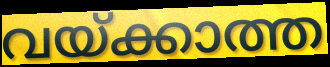
വയ്ക്കാത്ത